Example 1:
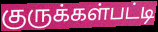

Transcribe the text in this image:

குருக்கள்பட்டி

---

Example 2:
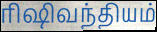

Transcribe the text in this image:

ரிஷிவந்தியம்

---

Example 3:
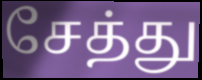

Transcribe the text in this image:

சேத்து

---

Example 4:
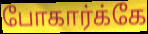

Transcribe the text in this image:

போகார்க்கே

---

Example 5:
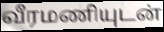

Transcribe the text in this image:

வீரமணியுடன்